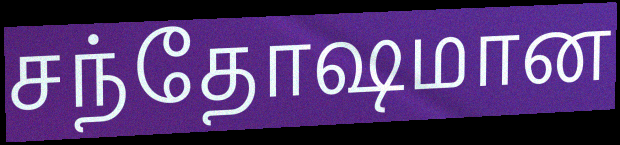
சந்தோஷமான